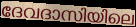
ദേവദാസിയിലെ